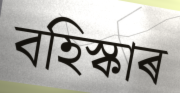
বহিস্কাৰ